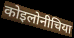
कोइलोनीचिया